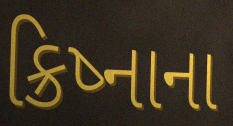
ક્રિષ્નાના